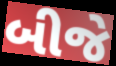
બીજે